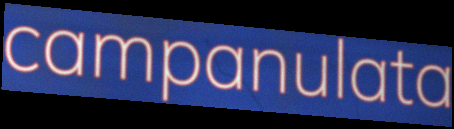
campanulata